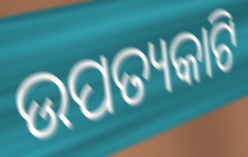
ଉପତ୍ୟକାଟି